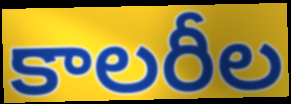
కాలరీల